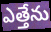
ఎత్తేను